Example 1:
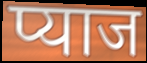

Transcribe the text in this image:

प्याज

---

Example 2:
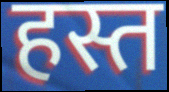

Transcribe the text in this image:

हस्त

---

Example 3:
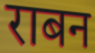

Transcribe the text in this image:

राबन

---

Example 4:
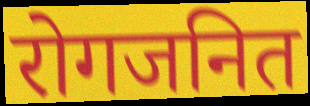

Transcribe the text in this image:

रोगजनित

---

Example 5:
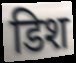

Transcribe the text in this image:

डिश